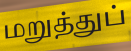
மறுத்துப்